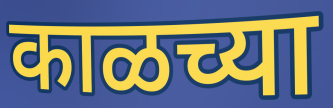
काळच्या